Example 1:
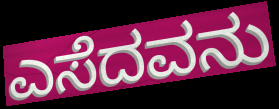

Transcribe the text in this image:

ಎಸೆದವನು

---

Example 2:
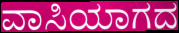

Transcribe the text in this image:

ವಾಸಿಯಾಗದ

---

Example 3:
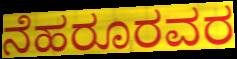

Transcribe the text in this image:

ನೆಹರೂರವರ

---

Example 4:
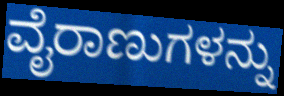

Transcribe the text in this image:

ವೈರಾಣುಗಳನ್ನು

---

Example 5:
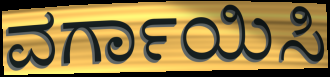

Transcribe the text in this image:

ವರ್ಗಾಯಿಸಿ